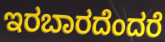
ಇರಬಾರದೆಂದರೆ